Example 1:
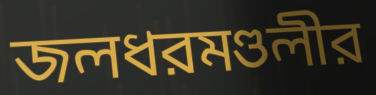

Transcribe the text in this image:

জলধরমণ্ডলীর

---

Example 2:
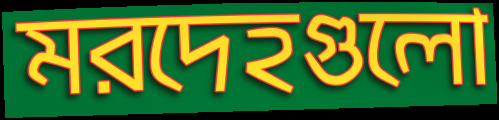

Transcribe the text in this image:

মরদেহগুলো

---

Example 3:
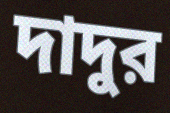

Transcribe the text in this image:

দাদুর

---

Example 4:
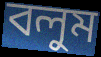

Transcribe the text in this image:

বলুম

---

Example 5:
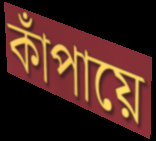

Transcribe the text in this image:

কাঁপায়ে